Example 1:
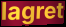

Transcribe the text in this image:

lagret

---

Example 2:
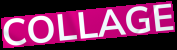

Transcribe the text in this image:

COLLAGE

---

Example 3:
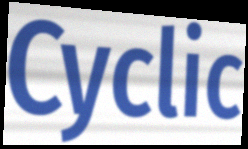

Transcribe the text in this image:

Cyclic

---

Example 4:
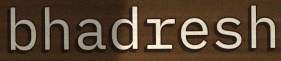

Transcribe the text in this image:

bhadresh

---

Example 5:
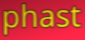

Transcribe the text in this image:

phast